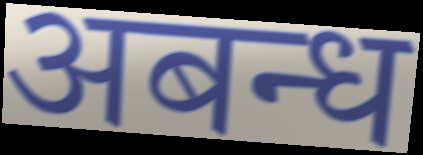
अबन्ध